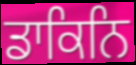
ਡਾਕਿਨਿ